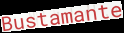
Bustamante